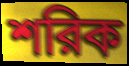
শরিক